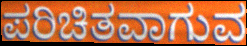
ಪರಿಚಿತವಾಗುವ